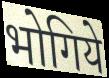
भोगिये